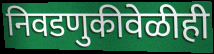
निवडणुकीवेळीही